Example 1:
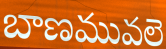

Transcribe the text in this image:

బాణమువలె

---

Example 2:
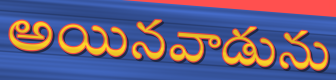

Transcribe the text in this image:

అయినవాడును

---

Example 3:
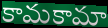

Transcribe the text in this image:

కామకామా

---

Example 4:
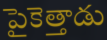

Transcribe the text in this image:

పైకెత్తాడు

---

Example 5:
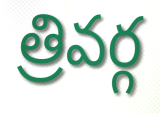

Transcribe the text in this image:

త్రివర్గ